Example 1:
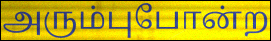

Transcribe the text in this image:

அரும்புபோன்ற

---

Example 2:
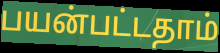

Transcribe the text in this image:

பயன்பட்டதாம்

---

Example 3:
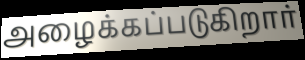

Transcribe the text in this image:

அழைக்கப்படுகிறார்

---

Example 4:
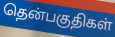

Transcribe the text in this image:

தென்பகுதிகள்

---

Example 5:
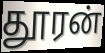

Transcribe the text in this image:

தூரன்